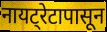
नायट्रेटापासून